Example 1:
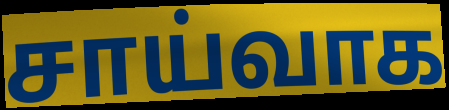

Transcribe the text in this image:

சாய்வாக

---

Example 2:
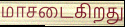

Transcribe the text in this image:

மாசடைகிறது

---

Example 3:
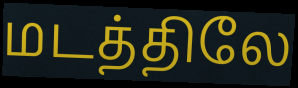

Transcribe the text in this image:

மடத்திலே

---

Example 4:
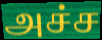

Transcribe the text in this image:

அச்ச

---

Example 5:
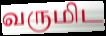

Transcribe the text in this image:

வருமிட